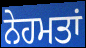
ਨੇਹਮਤਾਂ